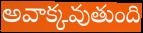
అవాక్కవుతుంది